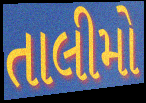
તાલીમો